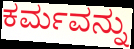
ಕರ್ಮವನ್ನು